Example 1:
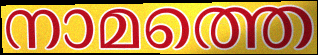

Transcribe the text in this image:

നാമത്തെ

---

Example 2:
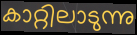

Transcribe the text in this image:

കാറ്റിലാടുന്നു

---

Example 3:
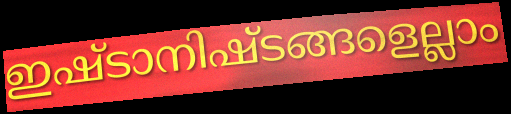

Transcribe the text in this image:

ഇഷ്ടാനിഷ്ടങ്ങളെല്ലാം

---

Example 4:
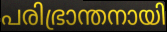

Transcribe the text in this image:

പരിഭ്രാന്തനായി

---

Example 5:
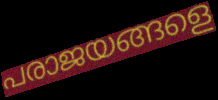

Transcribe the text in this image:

പരാജയങ്ങളെ